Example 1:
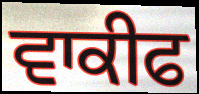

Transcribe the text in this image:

ਵਾਕੀਫ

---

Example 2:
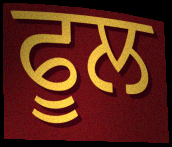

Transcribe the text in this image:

ਫੂਲ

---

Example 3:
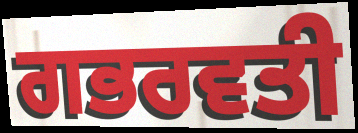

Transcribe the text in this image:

ਗਭਰਵਤੀ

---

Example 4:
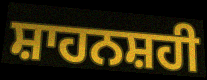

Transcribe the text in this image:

ਸ਼ਾਹਨਸ਼ਹੀ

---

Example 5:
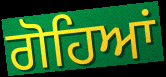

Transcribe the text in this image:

ਗੋਹਿਆਂ